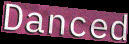
Danced